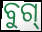
ବୁଗ୍